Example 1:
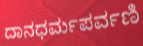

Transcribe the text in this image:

ದಾನಧರ್ಮಪರ್ವಣಿ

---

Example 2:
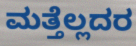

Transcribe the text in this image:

ಮತ್ತೆಲ್ಲದರ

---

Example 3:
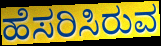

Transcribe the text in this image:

ಹೆಸರಿಸಿರುವ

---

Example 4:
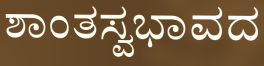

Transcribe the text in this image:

ಶಾಂತಸ್ವಭಾವದ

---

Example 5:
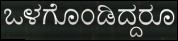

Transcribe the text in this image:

ಒಳಗೊಂಡಿದ್ದರೂ